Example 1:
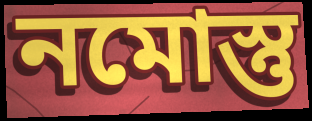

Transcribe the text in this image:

নমোস্তু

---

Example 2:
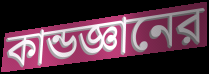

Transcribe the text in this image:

কান্ডজ্ঞানের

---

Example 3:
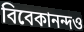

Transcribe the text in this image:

বিবেকানন্দও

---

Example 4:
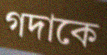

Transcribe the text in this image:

গদাকে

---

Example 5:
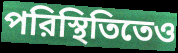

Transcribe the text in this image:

পরিস্থিতিতেও